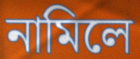
নামিলে